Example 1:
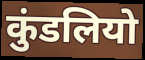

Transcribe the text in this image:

कुंडलियो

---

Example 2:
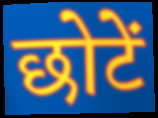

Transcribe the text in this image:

छोटें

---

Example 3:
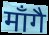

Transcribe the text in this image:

माँगै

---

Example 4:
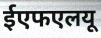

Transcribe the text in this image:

ईएफएलयू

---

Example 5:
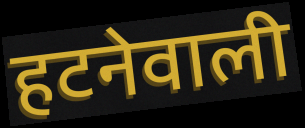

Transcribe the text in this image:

हटनेवाली